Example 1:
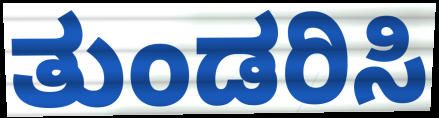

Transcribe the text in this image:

ತುಂಡರಿಸಿ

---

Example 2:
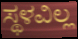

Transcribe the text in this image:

ಸ್ಥಳವಿಲ್ಲ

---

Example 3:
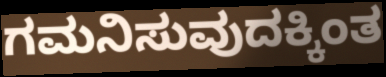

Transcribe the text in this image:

ಗಮನಿಸುವುದಕ್ಕಿಂತ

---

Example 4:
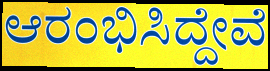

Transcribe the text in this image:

ಆರಂಭಿಸಿದ್ದೇವೆ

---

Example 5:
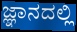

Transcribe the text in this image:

ಜ್ಞಾನದಲ್ಲಿ